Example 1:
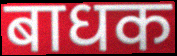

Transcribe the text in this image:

बाधक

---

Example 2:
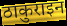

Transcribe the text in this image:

ठाकुराइन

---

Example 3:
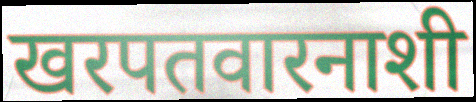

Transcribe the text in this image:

खरपतवारनाशी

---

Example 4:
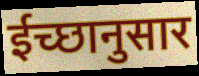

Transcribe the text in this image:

ईच्छानुसार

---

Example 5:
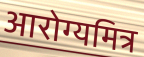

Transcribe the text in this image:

आरोग्यमित्र